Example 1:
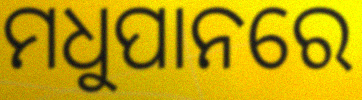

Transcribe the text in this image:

ମଧୁପାନରେ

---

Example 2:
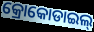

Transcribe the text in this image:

କ୍ରୋକୋଡାଇଲ୍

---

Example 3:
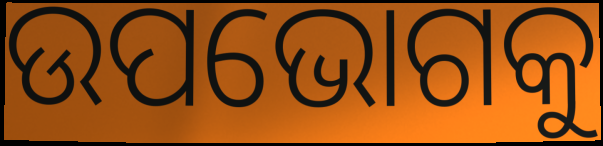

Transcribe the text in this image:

ଉପଭୋଗକୁ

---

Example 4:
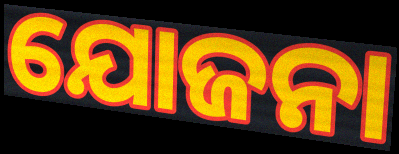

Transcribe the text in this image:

ଯୋଜନା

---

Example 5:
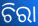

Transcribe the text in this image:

ଚିରା